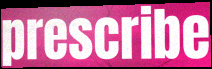
prescribe